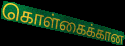
கொள்கைக்கான